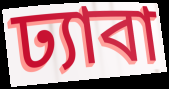
ঢ্যাবা